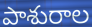
పాశురాల